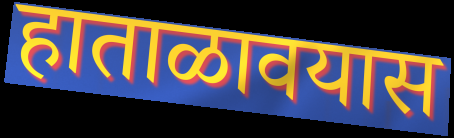
हाताळावयास